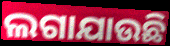
ଲଗାଯାଉଛି